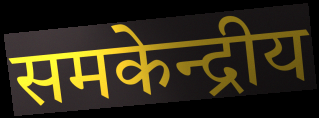
समकेन्द्रीय